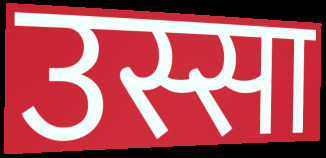
उस्सा